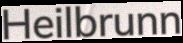
Heilbrunn